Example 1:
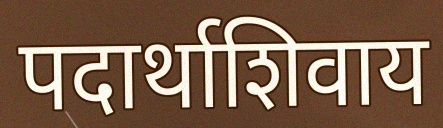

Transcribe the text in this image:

पदार्थाशिवाय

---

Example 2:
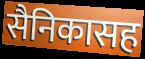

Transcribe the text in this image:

सैनिकासह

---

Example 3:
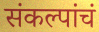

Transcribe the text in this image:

संकल्पांचं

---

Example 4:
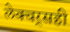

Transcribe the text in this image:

लेक्चर्सही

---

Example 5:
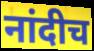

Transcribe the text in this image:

नांदीच